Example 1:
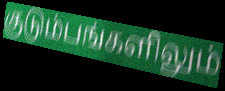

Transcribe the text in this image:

குடும்பங்களிலும்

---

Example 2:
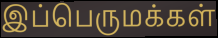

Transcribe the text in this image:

இப்பெருமக்கள்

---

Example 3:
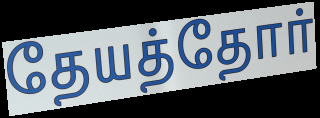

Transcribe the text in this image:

தேயத்தோர்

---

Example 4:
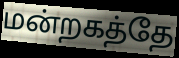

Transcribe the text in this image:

மன்றகத்தே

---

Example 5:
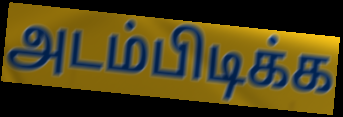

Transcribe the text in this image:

அடம்பிடிக்க